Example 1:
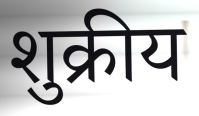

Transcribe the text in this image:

शुक्रीय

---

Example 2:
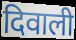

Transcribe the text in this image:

दिवाली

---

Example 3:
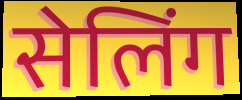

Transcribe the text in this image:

सेलिंग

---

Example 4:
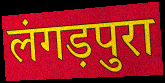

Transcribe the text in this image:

लंगड़पुरा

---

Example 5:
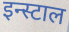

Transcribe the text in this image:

इन्स्टाल